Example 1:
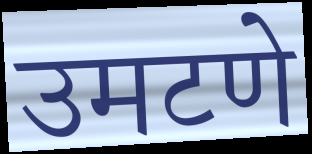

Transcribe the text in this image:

उमटणे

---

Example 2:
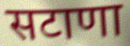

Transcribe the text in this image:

सटाणा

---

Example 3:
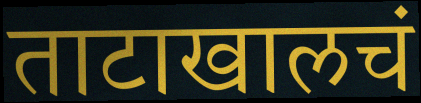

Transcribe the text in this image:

ताटाखालचं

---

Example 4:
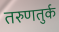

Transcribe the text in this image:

तरुणतुर्क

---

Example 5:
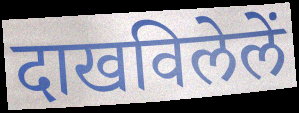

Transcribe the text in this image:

दाखविलेलें